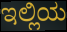
ಇಲ್ಲಿಯ